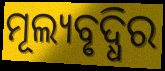
ମୂଲ୍ୟବୃଦ୍ଧିର